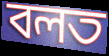
বলত